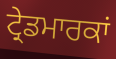
ਟ੍ਰੇਡਮਾਰਕਾਂ